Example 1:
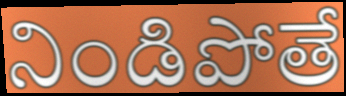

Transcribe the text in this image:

నిండిపోతే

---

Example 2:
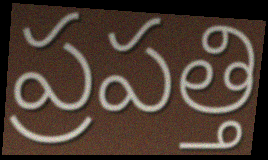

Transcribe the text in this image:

ప్రపత్తి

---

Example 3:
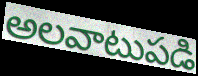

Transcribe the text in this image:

అలవాటుపడి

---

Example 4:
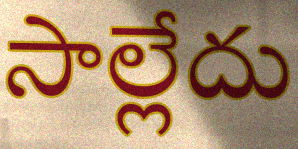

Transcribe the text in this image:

సాల్లేదు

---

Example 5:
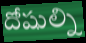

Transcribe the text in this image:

దోషుల్ని